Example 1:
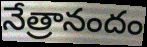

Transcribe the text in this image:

నేత్రానందం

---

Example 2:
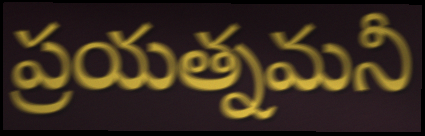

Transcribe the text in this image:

ప్రయత్నమనీ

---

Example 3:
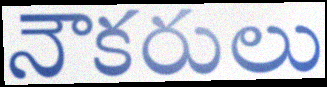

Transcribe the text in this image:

నౌకరులు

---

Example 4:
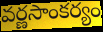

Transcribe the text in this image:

వర్ణసాంకర్యం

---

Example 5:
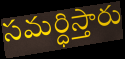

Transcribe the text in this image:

సమర్ధిస్తారు